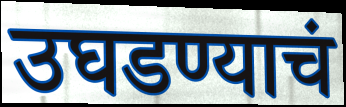
उघडण्याचं